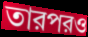
তারপরও